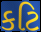
કટિ